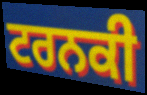
ਟਰਨਕੀ